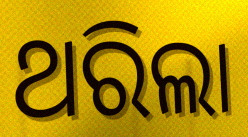
ଥରିଲା